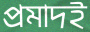
প্রমাদই